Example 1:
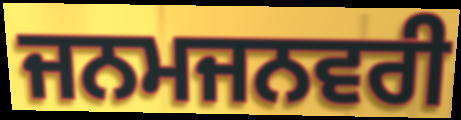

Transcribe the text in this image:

ਜਨਮਜਨਵਰੀ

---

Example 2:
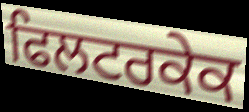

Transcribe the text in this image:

ਫਿਲਟਰਕੇਕ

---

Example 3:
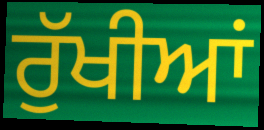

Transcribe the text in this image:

ਰੁੱਖੀਆਂ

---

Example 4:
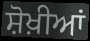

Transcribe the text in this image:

ਸ਼ੋਖ਼ੀਆਂ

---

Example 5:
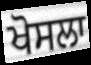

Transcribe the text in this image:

ਖੋਸਲਾ